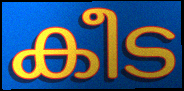
കീട